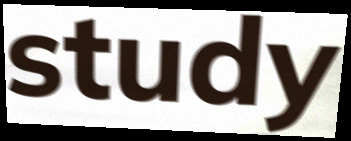
study